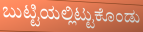
ಬುಟ್ಟಿಯಲ್ಲಿಟ್ಟುಕೊಂಡು